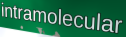
intramolecular